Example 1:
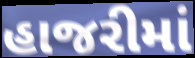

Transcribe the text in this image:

હાજરીમાં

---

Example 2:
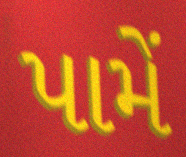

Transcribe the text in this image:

પામેં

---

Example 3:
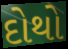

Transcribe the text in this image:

દોથો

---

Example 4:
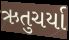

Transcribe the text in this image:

ઋતુચર્યા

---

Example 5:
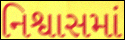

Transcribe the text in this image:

નિશ્વાસમાં